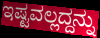
ಇಷ್ಟವಲ್ಲದ್ದನ್ನು